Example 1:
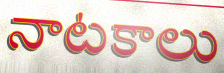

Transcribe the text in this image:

నాటకాలు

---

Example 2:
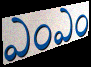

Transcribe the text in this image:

ఎంఎం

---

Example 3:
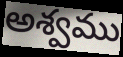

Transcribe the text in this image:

అశ్వము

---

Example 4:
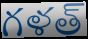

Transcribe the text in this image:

గళత్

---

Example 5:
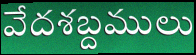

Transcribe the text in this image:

వేదశబ్దములు